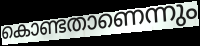
കൊണ്ടതാണെന്നും